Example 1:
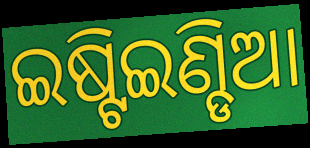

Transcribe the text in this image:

ଇଷ୍ଟିଇଣ୍ଡିଆ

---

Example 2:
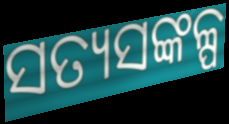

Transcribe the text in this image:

ସତ୍ୟସଙ୍କଳ୍ପ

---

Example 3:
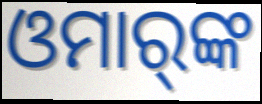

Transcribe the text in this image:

ଓମାର୍‌ଙ୍କ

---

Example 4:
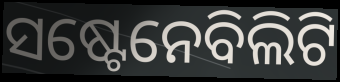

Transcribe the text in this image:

ସଷ୍ଟେନେବିଲିଟି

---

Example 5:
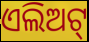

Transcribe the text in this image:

ଏଲିଅଟ୍